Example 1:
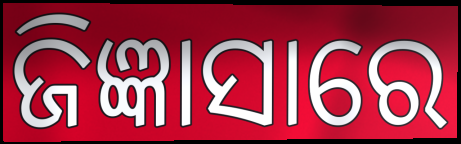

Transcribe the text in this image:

ଜିଜ୍ଞାସାରେ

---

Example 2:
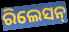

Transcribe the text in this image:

ରିଲେସନ୍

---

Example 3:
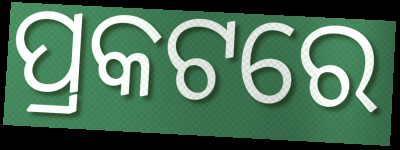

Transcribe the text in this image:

ପ୍ରକଟରେ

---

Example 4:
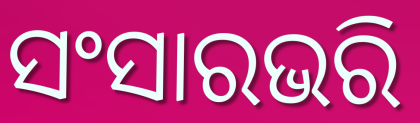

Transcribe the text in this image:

ସଂସାରଭରି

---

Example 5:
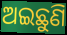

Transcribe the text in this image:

ଅଇଛୁଣି